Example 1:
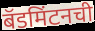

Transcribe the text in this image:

बॅडमिंटनची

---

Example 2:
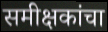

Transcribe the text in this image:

समीक्षकांचा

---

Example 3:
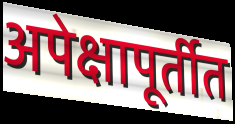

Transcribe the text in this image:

अपेक्षापूर्तीत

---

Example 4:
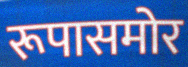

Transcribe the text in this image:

रूपासमोर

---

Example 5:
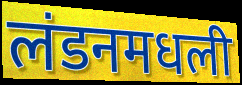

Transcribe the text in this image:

लंडनमधली